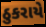
ઠુકરાયે